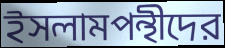
ইসলামপন্থীদের